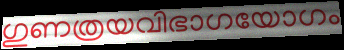
ഗുണത്രയവിഭാഗയോഗം